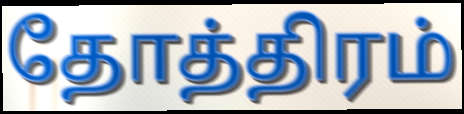
தோத்திரம்